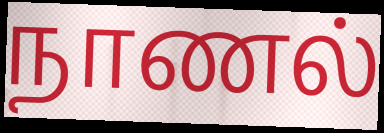
நாணல்